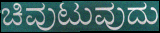
ಚಿವುಟುವುದು